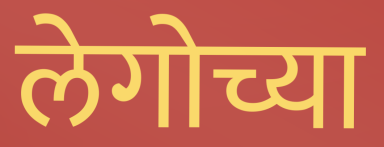
लेगोच्या